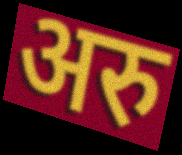
अरु